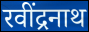
रवींद्रनाथ